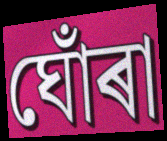
ঘোঁৰা